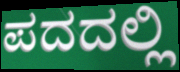
ಪದದಲ್ಲಿ